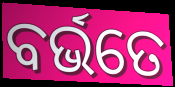
ବର୍ଭତେ